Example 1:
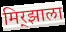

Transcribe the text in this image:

मिर्झाला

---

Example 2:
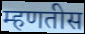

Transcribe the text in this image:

म्हणतीस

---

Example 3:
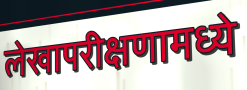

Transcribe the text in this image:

लेखापरीक्षणामध्ये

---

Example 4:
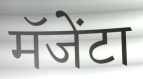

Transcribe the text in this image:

मॅजेंटा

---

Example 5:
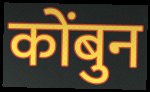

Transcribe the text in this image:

कोंबुन